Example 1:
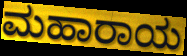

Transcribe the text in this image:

ಮಹಾರಾಯ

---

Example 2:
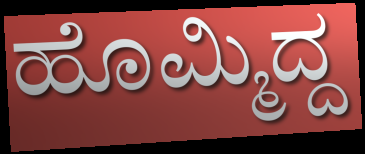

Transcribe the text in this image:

ಹೊಮ್ಮಿದ್ದ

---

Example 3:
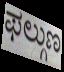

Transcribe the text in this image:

ಫಲ್ಗುಣ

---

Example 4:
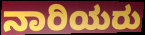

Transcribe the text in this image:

ನಾರಿಯರು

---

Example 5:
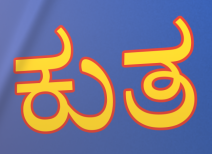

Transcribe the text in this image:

ಕುತ